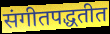
संगीतपद्धतीत